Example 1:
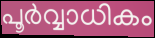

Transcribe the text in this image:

പൂർവ്വാധികം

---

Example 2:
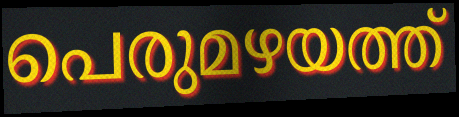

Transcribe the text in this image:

പെരുമഴയത്ത്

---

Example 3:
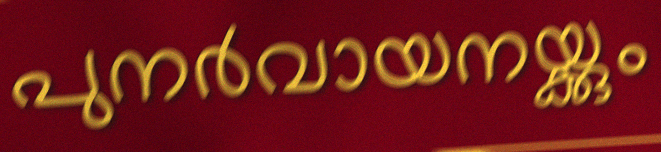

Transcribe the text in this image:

പുനർവായനയ്ക്കും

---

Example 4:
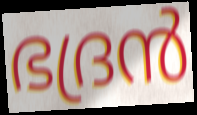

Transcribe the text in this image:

ഭദ്രൻ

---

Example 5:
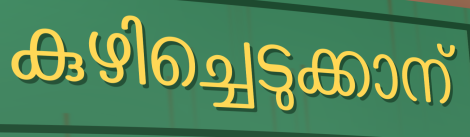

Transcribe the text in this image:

കുഴിച്ചെടുക്കാന്